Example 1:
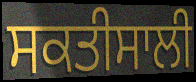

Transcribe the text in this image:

ਸਕਤੀਸਾਲੀ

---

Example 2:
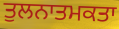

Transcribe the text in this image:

ਤੁਲਨਾਤਮਕਤਾ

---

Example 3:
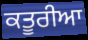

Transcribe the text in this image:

ਕਤੂਰੀਆ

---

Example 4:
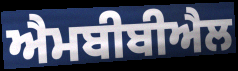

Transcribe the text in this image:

ਐਮਬੀਬੀਐਲ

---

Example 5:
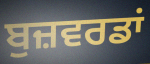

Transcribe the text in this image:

ਬੁਜ਼ਵਰਡਾਂ